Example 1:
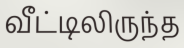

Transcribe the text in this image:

வீட்டிலிருந்த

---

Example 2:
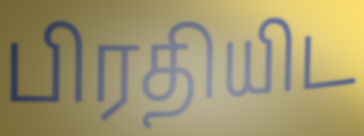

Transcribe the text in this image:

பிரதியிட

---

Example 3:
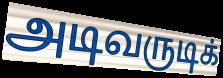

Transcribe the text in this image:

அடிவருடிக்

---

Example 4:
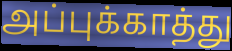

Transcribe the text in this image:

அப்புக்காத்து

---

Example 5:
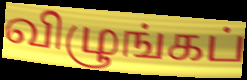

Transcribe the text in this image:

விழுங்கப்